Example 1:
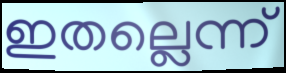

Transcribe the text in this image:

ഇതല്ലെന്ന്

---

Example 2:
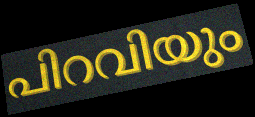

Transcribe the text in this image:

പിറവിയും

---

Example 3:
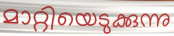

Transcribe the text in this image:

മാറ്റിയെടുക്കുന്നു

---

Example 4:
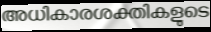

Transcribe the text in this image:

അധികാരശക്തികളുടെ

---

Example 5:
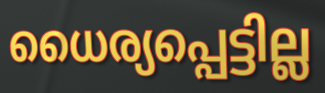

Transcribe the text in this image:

ധൈര്യപ്പെട്ടില്ല